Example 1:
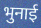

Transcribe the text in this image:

भुनाई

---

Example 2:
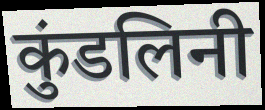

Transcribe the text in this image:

कुंडलिनी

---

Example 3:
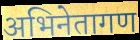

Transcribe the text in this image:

अभिनेतागण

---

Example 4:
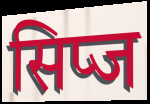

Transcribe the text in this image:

सिप्ज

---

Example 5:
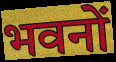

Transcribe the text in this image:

भवनों